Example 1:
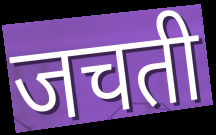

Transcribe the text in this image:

जचती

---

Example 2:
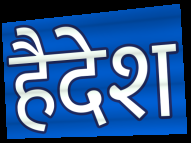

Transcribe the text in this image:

हैदेश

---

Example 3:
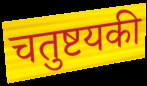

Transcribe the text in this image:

चतुष्टयकी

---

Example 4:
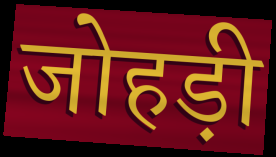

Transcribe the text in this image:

जोहड़ी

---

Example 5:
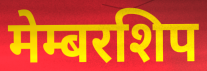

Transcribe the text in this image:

मेम्बरशिप